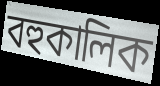
বহুকালিক